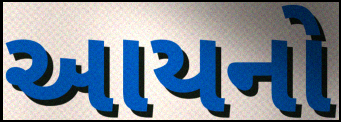
આયનો